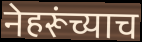
नेहरूंच्याच